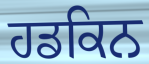
ਹਡਕਿਨ